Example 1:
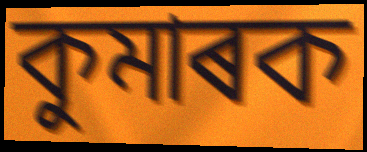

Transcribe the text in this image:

কুমাৰক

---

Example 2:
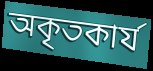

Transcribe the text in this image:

অকৃতকাৰ্য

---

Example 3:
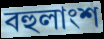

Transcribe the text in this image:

বহুলাংশ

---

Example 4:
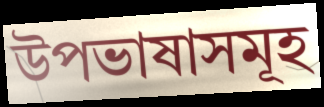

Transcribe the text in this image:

উপভাষাসমূহ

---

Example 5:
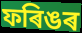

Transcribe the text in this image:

ফৰিঙৰ